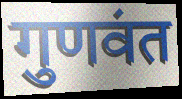
गुणवंत